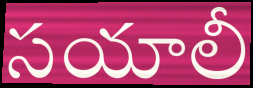
సయాలీ